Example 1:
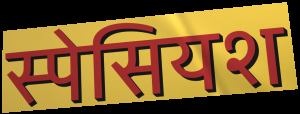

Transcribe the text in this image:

स्पेसियश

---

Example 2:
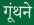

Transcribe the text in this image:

गूंथने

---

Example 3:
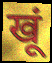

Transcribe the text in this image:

खूं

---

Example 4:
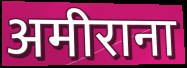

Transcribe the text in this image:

अमीराना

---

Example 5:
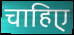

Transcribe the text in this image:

चाहिए